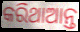
କରିଥାଆନ୍ତ